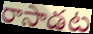
రాసాడట